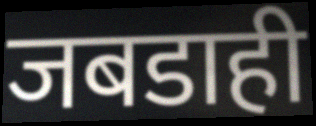
जबडाही